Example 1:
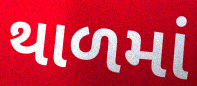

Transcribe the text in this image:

થાળમાં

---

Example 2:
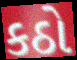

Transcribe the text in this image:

કઠો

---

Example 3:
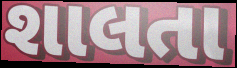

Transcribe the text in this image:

શાલતા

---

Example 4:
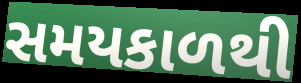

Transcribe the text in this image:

સમયકાળથી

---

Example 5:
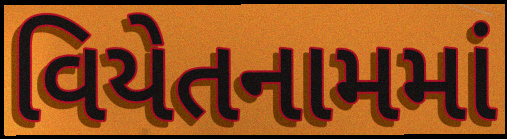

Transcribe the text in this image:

વિયેતનામમાં